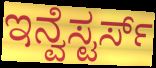
ಇನ್ವೆಸ್ಟರ್ಸ್